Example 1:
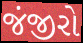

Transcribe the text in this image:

જંજીરો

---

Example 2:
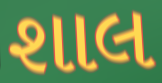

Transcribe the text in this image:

શાલ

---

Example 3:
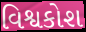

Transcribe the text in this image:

વિશ્વકોશ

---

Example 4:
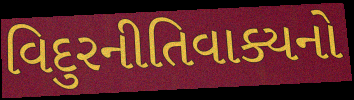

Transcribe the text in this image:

વિદુરનીતિવાક્યનો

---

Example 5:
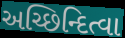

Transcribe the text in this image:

અચ્છિન્દિત્વા